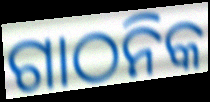
ଗାଠନିକ